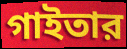
গাইতার